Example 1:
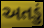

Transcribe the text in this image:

અતડું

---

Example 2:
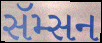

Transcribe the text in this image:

સૅમ્સન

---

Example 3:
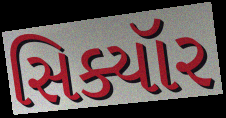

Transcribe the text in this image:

સિક્યૉર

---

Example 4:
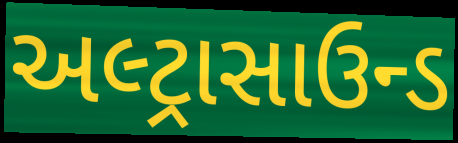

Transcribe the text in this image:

અલ્ટ્રાસાઉન્ડ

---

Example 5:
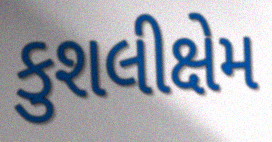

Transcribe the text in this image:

કુશલીક્ષેમ